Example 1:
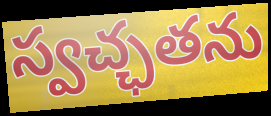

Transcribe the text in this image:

స్వచ్ఛతను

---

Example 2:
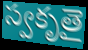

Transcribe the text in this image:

స్వకృతై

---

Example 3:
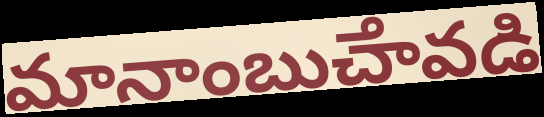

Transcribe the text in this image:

మానాంబుౘావడి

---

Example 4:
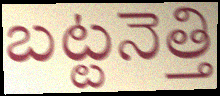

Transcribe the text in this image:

బట్టనెత్తి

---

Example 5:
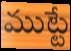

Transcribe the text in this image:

ముట్టే